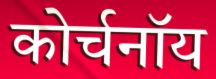
कोर्चनॉय